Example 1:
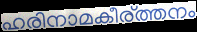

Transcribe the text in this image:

ഹരിനാമകീര്ത്തനം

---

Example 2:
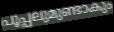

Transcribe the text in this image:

പൂപ്പലുമുണ്ടാകും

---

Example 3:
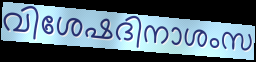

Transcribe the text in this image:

വിശേഷദിനാശംസ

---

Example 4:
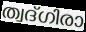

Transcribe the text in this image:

ത്വദ്ഗിരാ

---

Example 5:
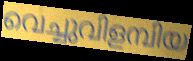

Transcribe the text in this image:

വെച്ചുവിളമ്പിയ